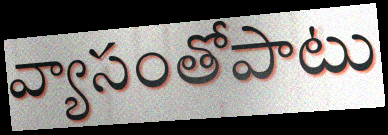
వ్యాసంతోపాటు